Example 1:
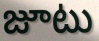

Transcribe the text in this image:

జూటు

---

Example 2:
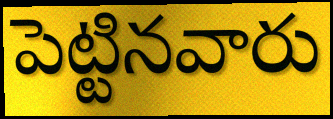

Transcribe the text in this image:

పెట్టినవారు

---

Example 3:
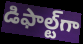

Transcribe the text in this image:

డిఫాల్ట్‌గా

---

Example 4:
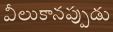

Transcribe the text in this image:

వీలుకానప్పుడు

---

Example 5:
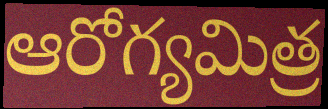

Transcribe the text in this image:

ఆరోగ్యమిత్ర